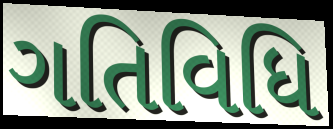
ગતિવિધિ